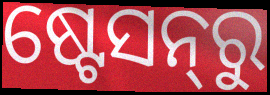
ଷ୍ଟେସନ୍‌ରୁ